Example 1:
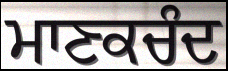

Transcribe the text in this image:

ਮਾਣਕਚੰਦ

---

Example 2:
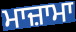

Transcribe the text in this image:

ਮਾਜ਼ਾਮਾ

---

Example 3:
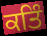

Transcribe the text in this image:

ਕਤਿੰ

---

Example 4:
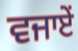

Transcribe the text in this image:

ਵਜਾਏਂ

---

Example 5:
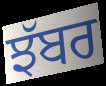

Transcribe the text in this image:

ਝੱਬਰ